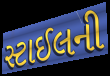
સ્ટાઈલની